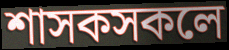
শাসকসকলে